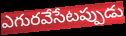
ఎగురవేసేటప్పుడు